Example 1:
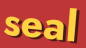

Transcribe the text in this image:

seal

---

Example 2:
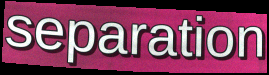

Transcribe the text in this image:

separation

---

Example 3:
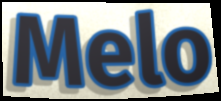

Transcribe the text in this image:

Melo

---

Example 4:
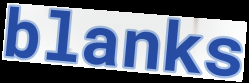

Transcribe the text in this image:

blanks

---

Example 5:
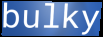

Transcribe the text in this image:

bulky